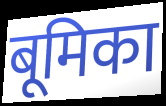
बूमिका